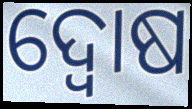
ଦ୍ୱୋଷ